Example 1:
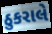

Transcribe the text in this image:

ઠુકરાલે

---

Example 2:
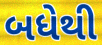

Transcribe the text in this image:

બધેથી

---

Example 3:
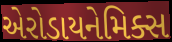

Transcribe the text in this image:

એરોડાયનેમિક્સ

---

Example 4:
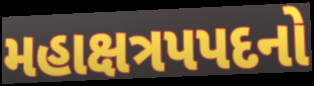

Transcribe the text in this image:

મહાક્ષત્રપપદનો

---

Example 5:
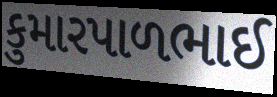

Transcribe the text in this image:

કુમારપાળભાઈ